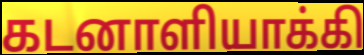
கடனாளியாக்கி